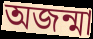
অজন্মা